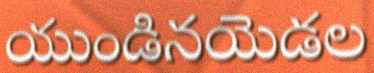
యుండినయెడల